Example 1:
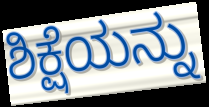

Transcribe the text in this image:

ಶಿಕ್ಷೆಯನ್ನು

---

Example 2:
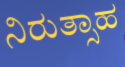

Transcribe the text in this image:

ನಿರುತ್ಸಾಹ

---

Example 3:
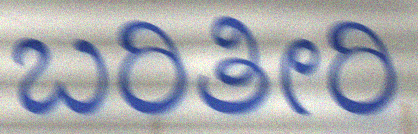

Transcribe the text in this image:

ಬರಿತೀರಿ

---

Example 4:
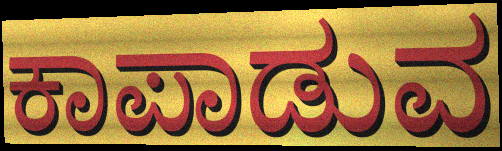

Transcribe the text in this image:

ಕಾಪಾಡುವ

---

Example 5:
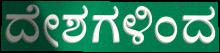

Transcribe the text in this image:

ದೇಶಗಳಿಂದ